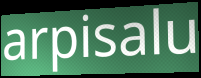
arpisalu